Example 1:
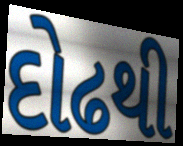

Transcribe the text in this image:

દોઢથી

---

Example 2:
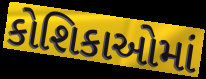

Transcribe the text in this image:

કોશિકાઓમાં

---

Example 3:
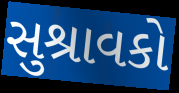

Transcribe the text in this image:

સુશ્રાવકો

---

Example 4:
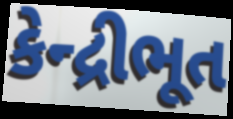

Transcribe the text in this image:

કેન્દ્રીભૂત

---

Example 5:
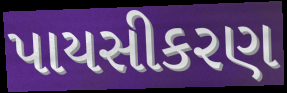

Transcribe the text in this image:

પાયસીકરણ